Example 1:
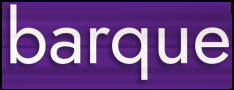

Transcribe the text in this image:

barque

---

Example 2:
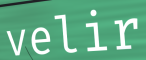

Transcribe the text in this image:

velir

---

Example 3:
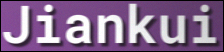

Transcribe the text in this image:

Jiankui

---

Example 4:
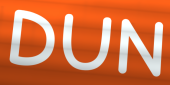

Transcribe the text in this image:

DUN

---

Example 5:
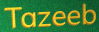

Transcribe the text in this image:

Tazeeb